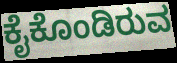
ಕೈಕೊಂಡಿರುವ